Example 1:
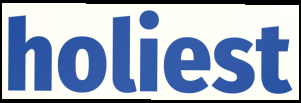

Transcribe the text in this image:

holiest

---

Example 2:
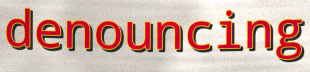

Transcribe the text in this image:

denouncing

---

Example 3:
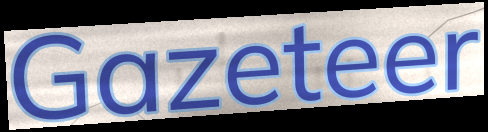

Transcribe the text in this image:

Gazeteer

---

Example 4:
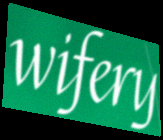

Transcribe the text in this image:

wifery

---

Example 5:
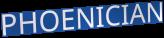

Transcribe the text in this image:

PHOENICIAN